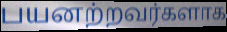
பயனற்றவர்களாக